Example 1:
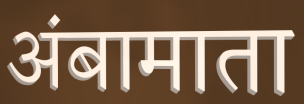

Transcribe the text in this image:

अंबामाता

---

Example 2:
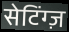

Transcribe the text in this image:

सेटिंग्ज़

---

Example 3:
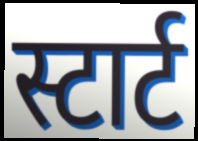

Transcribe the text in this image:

स्टार्ट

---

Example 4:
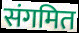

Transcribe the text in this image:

संगमित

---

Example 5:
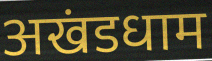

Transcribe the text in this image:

अखंडधाम